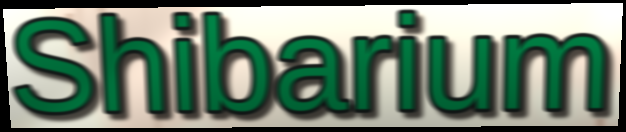
Shibarium